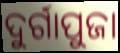
ଦୁର୍ଗାପୁଜା